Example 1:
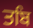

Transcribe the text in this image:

ਤਬਿ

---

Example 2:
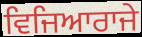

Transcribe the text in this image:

ਵਿਜਿਆਰਾਜੇ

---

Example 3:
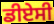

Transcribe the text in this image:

ਡੀਏਸੀ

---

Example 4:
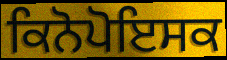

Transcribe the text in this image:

ਕਿਨੋਪੋਇਸਕ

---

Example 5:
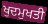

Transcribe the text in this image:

ਖੁਦਮੁਖਤੀ